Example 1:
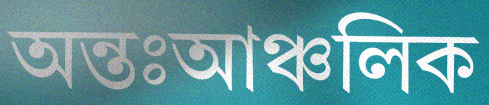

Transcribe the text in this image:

অন্তঃআঞ্চলিক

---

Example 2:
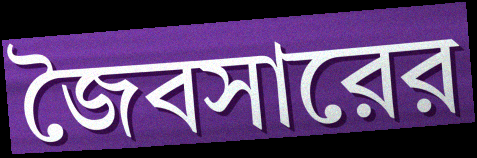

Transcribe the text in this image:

জৈবসারের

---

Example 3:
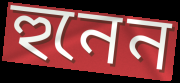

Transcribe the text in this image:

হুনেন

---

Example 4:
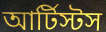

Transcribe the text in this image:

আর্টিস্টস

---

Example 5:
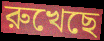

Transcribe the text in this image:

রুখেছে